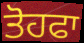
ਤੋਹਫਾ